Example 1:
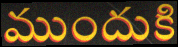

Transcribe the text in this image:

ముందుకి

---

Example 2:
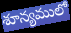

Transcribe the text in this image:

శూన్యములో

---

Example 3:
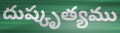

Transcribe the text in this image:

దుష్కృత్యము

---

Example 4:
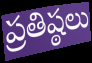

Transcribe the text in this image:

ప్రతిష్ఠలు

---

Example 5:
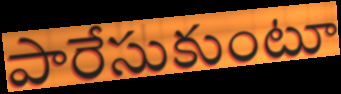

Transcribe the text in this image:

పారేసుకుంటూ